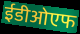
ईडीओएफ